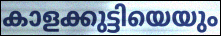
കാളക്കുട്ടിയെയും